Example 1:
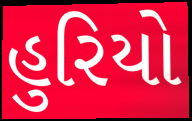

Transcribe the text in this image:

હુરિયો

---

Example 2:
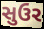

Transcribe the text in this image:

સુઉર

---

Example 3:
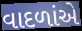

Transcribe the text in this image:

વાદળાંએ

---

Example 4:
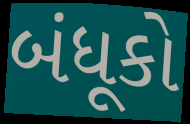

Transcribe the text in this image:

બંધૂકો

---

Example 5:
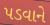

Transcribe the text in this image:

પડવાને